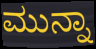
ಮುನ್ನಾ